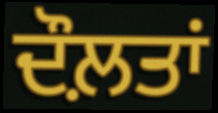
ਦੌਲ਼ਤਾਂ